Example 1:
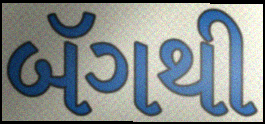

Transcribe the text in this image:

બૅગથી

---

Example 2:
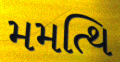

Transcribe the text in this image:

મમત્થિ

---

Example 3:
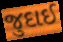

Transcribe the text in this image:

જુદાઈ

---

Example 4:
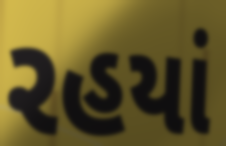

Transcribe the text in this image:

રહયાં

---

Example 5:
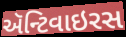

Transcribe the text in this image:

ઍન્ટિવાઇરસ